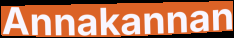
Annakannan